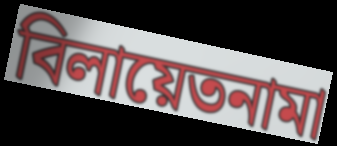
বিলায়েতনামা